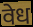
वेध